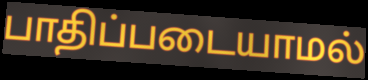
பாதிப்படையாமல்